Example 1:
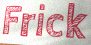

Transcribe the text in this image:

Frick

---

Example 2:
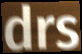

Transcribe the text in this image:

drs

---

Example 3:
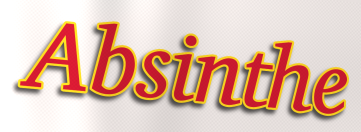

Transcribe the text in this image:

Absinthe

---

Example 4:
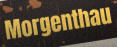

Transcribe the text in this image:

Morgenthau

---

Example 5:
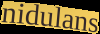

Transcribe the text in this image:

nidulans